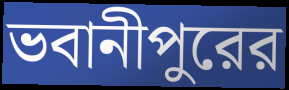
ভবানীপুরের